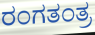
ರಂಗತಂತ್ರ